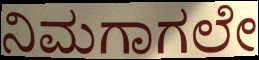
ನಿಮಗಾಗಲೇ